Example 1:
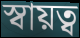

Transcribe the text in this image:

স্বায়ত্ব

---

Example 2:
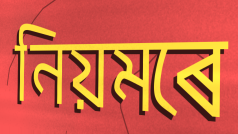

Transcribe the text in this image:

নিয়মৰে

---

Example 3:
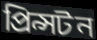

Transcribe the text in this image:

প্ৰিন্সটন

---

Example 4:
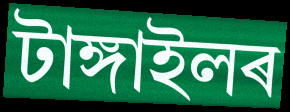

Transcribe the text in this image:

টাঙ্গাইলৰ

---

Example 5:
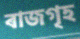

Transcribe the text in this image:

ৰাজগৃহ